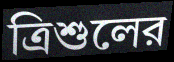
ত্রিশুলের